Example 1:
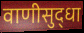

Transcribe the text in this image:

वाणीसुद्धा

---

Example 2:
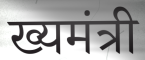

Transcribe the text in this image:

ख्यमंत्री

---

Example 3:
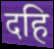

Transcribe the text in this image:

दहि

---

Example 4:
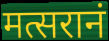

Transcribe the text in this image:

मत्सरानं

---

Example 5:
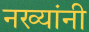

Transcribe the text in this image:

नख्यांनी